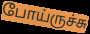
போய்ருச்சு